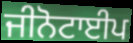
ਜੀਨੋਟਾਈਪ